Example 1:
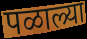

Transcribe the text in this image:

पळाल्या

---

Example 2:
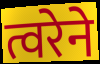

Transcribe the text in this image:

त्वरेने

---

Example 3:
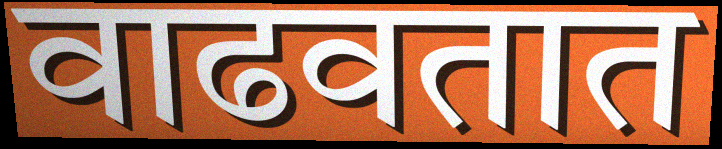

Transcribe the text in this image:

वाढवतात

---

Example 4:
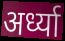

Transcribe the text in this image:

अर्ध्या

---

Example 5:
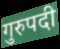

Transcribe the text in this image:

गुरुपदी